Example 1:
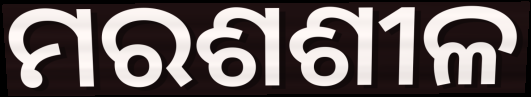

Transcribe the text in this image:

ମରଶଶୀଳ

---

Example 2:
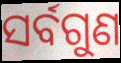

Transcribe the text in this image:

ସର୍ବଗୁଣ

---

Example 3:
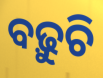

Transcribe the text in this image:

ବଢ଼ୁଚି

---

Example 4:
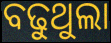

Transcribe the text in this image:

ବଢୁଥୁଲା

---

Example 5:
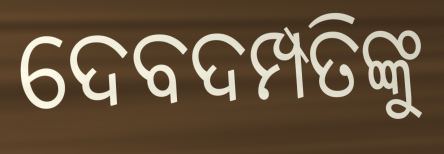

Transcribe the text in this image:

ଦେବଦମ୍ପତିଙ୍କୁ